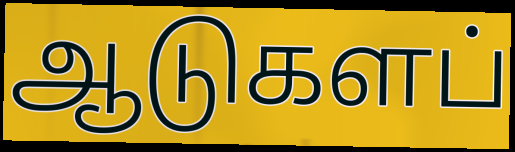
ஆடுகளப்